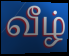
வீழ்